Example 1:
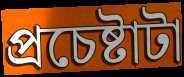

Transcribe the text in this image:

প্রচেষ্টাটা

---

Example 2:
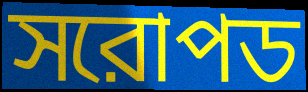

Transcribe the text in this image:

সরোপড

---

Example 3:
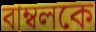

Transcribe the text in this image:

বাম্বলকে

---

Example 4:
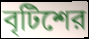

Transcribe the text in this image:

বৃটিশের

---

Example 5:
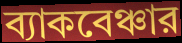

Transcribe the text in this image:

ব্যাকবেঞ্চার